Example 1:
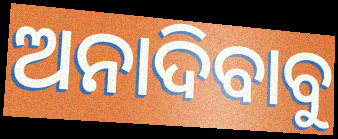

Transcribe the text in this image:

ଅନାଦିବାବୁ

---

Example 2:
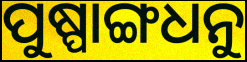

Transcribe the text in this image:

ପୁଷ୍ପାଙ୍ଗଧନୁ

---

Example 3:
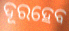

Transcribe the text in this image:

ଦୂରହେବ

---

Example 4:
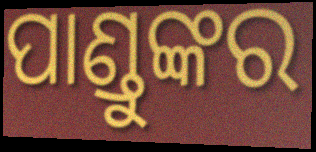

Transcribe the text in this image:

ପାଣ୍ଡୁଙ୍କର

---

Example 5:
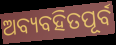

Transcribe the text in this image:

ଅବ୍ୟବହିତପୂର୍ବ